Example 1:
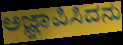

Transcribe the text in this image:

ಅಜ್ಞಾಪಿಸಿದನು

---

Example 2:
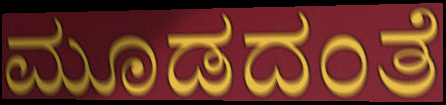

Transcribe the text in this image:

ಮೂಡದಂತೆ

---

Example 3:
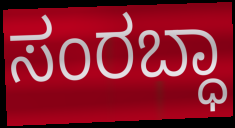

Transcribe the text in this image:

ಸಂರಬ್ಧಾ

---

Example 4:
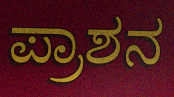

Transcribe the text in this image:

ಪ್ರಾಶನ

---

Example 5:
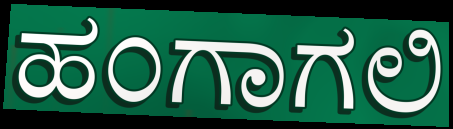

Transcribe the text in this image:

ಹಂಗಾಗಲಿ